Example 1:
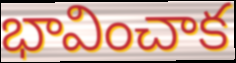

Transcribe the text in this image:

భావించాక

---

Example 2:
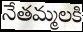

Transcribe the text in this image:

నేతమ్మలకి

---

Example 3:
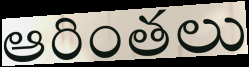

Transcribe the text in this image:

ఆరింతలు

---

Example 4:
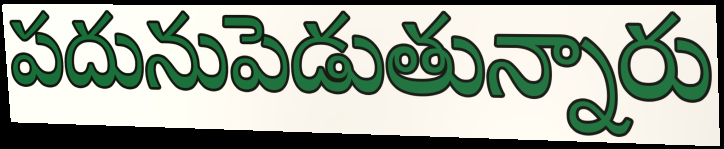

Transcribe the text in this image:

పదునుపెడుతున్నారు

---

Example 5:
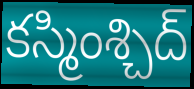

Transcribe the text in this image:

కస్మింశ్చిద్